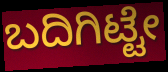
ಬದಿಗಿಟ್ಟೇ